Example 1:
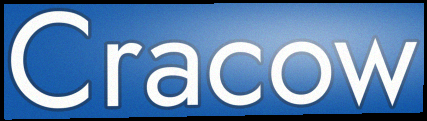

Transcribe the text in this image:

Cracow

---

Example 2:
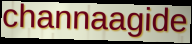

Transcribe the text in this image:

channaagide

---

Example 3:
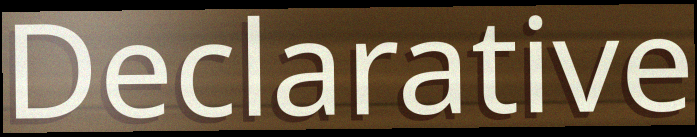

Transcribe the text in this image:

Declarative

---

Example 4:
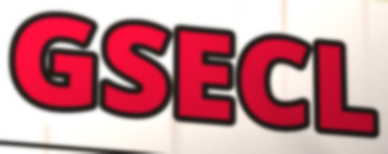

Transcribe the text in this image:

GSECL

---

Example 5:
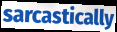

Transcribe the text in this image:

sarcastically